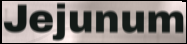
Jejunum